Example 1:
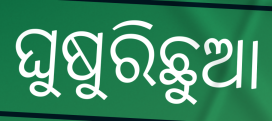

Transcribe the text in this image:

ଘୁଷୁରିଛୁଆ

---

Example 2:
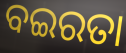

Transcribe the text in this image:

ବଇରତା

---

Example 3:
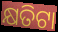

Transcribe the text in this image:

କ୍ଷତିଟା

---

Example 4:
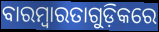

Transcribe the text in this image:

ବାରମ୍ବାରତାଗୁଡ଼ିକରେ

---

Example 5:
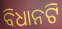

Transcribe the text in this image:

ବିଧାନଟି